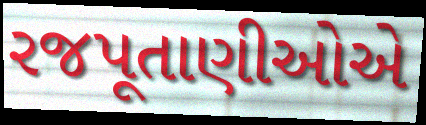
રજપૂતાણીઓએ